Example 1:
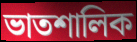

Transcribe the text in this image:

ভাতশালিক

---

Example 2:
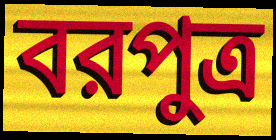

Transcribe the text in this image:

বরপুত্র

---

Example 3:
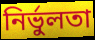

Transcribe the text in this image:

নির্ভুলতা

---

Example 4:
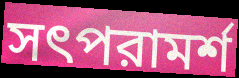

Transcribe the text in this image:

সৎপরামর্শ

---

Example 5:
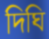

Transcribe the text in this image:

দিঘি